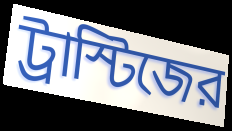
ট্রাস্টিজের